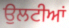
ਉਲਟੀਆਂ